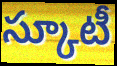
స్కూటీ